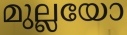
മുല്ലയോ